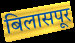
बिलासपूर